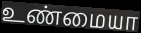
உண்மையா